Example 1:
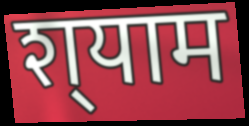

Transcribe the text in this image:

श्याम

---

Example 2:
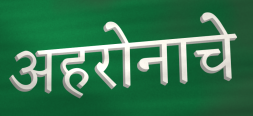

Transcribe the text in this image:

अहरोनाचे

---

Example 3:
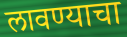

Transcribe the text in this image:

लावण्याचा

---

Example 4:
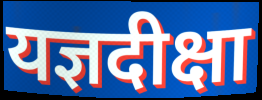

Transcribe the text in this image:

यज्ञदीक्षा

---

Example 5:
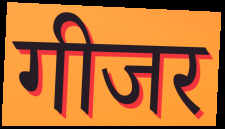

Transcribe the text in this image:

गीजर